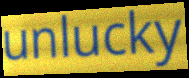
unlucky